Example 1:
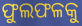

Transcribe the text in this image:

ଫୁଲଫଳକୁ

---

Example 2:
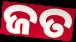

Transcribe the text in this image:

ଜତ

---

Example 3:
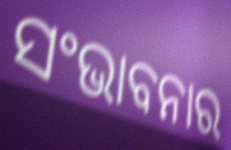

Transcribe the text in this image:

ସଂଭାବନାର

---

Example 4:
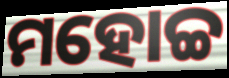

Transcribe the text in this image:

ମହୋଚ୍ଚ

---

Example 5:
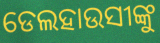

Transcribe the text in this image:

ଡେଲହାଉସୀଙ୍କୁ